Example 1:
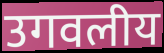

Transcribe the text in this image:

उगवलीय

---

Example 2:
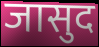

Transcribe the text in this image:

जासुद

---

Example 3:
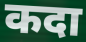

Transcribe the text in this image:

कदा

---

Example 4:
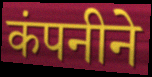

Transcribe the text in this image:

कंपनीने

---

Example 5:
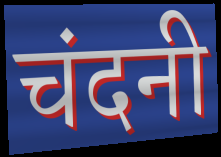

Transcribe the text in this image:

चंदनी